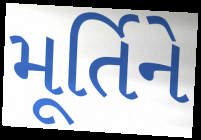
મૂર્તિને